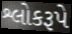
શ્લોકરૂપે